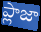
ప్లాజా